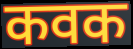
कवक